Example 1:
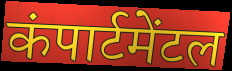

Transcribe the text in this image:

कंपार्टमेंटल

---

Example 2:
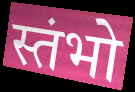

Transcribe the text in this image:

स्तंभो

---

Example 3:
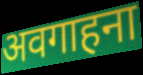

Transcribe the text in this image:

अवगाहना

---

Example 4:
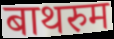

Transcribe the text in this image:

बाथरुम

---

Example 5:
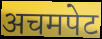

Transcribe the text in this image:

अचमपेट